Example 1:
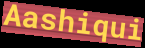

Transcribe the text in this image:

Aashiqui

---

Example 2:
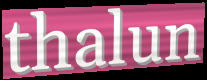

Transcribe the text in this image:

thalun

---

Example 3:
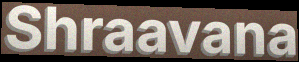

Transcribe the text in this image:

Shraavana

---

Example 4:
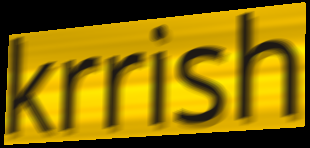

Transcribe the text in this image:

krrish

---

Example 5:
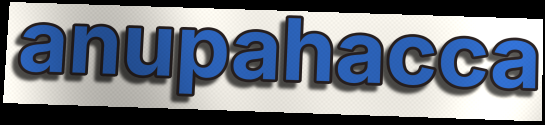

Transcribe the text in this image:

anupahacca